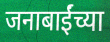
जनाबाईंच्या